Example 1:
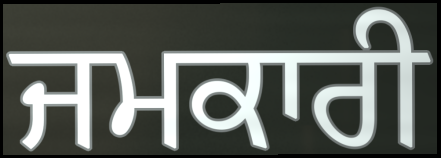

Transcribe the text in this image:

ਜਮਕਾਰੀ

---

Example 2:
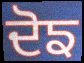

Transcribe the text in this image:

ਦੋਙ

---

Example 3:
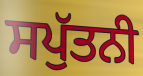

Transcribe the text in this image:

ਸਪੁੱਤਨੀ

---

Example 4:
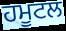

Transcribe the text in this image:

ਹਮੂਟਲ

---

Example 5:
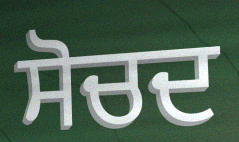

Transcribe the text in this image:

ਸੋਚਦ